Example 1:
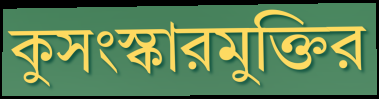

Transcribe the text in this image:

কুসংস্কারমুক্তির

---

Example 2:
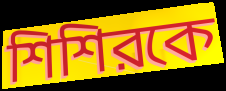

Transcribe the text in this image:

শিশিরকে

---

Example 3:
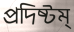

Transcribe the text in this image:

প্রদিষ্টম্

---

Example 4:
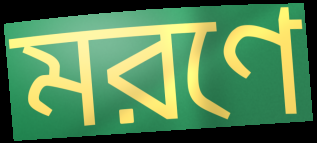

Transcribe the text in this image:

মরণে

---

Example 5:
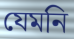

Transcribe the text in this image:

যেমনি